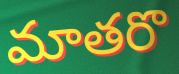
మాతరొ